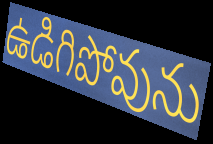
ఉడిగిపోవును